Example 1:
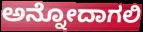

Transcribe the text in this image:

ಅನ್ನೋದಾಗಲಿ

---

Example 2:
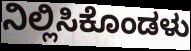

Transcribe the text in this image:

ನಿಲ್ಲಿಸಿಕೊಂಡಳು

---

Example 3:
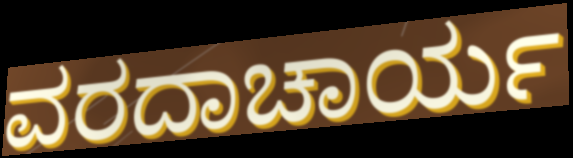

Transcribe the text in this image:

ವರದಾಚಾರ್ಯ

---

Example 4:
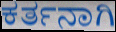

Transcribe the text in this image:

ಕರ್ತನಾಗಿ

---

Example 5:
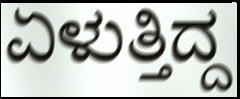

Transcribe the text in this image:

ಏಳುತ್ತಿದ್ದ